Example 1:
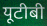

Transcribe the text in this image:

यूटीबी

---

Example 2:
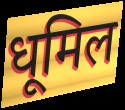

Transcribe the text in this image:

धूमिल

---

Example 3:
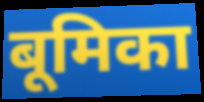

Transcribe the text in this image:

बूमिका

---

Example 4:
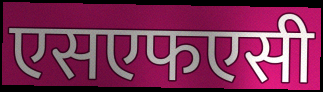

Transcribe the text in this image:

एसएफएसी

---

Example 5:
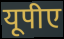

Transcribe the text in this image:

यूपीए